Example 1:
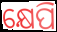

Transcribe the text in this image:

କ୍ଷେପି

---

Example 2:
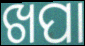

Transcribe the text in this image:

ଖପା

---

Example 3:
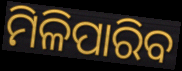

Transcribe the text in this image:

ମିଳିପାରିବ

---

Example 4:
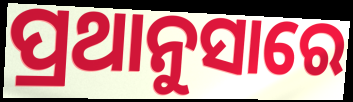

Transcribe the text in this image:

ପ୍ରଥାନୁସାରେ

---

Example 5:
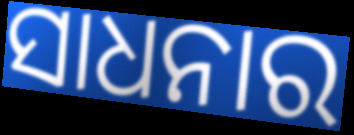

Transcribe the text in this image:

ସାଧନାର